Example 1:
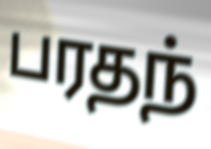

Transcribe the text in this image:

பரதந்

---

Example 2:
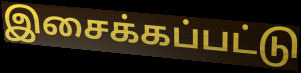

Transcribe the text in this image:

இசைக்கப்பட்டு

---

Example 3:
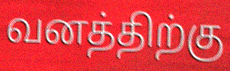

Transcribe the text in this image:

வனத்திற்கு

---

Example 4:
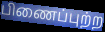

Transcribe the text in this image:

பிணைப்புற்ற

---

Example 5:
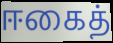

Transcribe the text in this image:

ஈகைத்